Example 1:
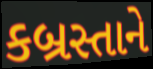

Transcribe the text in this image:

કબ્રસ્તાને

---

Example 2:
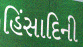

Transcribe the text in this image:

હિંસાદિની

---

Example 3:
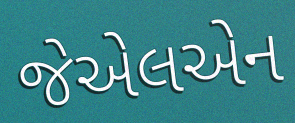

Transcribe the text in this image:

જેએલએન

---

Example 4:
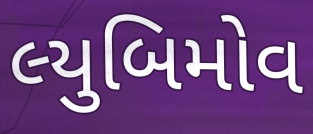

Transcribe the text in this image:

લ્યુબિમોવ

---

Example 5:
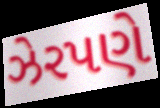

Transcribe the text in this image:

ઝેરપણે